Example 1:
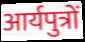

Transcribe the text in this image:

आर्यपुत्रों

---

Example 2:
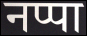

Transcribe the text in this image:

नप्पा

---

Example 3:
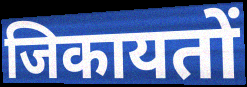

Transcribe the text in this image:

जिकायतों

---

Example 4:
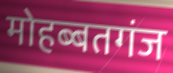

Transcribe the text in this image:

मोहब्बतगंज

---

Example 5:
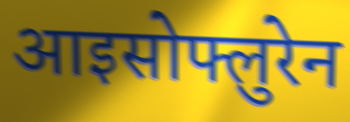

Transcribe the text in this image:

आइसोफ्लुरेन